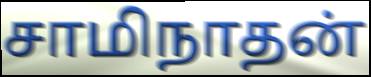
சாமிநாதன்